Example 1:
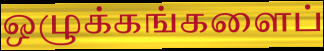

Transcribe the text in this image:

ஒழுக்கங்களைப்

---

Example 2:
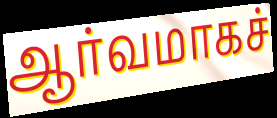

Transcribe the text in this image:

ஆர்வமாகச்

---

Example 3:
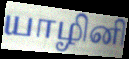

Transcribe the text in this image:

யாழினி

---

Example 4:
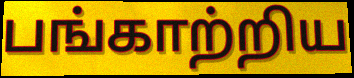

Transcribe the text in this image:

பங்காற்றிய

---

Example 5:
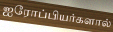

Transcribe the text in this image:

ஐரோப்பியர்களால்